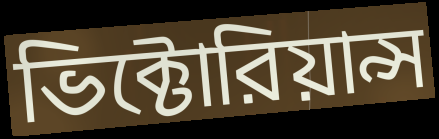
ভিক্টোরিয়ান্স